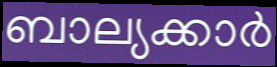
ബാല്യക്കാർ